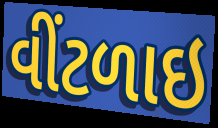
વીંટળાઇ